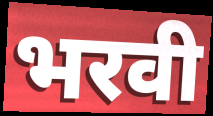
भरवी